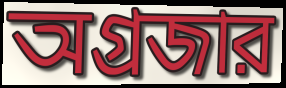
অগ্রজার